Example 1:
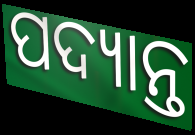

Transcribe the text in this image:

ପଦ୍ୟାନ୍ତ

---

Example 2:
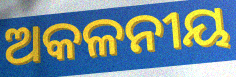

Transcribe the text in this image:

ଅକଳନୀୟ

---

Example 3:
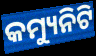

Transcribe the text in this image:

କମ୍ୟୁନିଟି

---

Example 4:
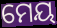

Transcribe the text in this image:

ମେୟ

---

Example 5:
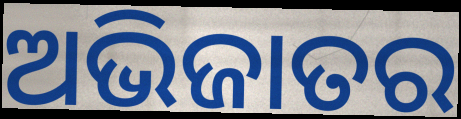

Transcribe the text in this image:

ଅଭିଜାତର